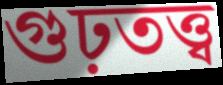
গুঢ়তত্ত্ব